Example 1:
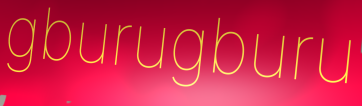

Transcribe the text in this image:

gburugburu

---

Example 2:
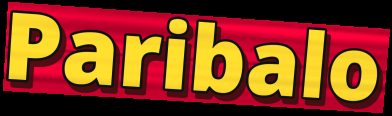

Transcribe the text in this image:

Paribalo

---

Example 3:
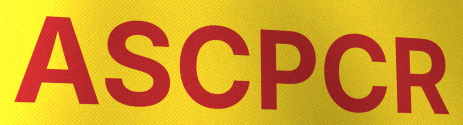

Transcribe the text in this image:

ASCPCR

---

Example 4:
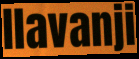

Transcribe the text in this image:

Ilavanji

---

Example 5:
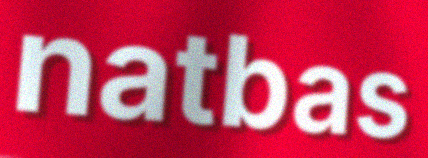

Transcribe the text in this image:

natbas